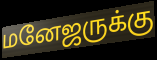
மனேஜருக்கு